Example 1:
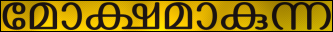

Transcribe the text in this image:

മോക്ഷമാകുന്ന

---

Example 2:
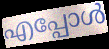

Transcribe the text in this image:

എപ്പോൾ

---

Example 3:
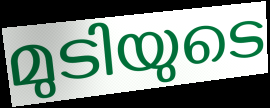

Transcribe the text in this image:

മുടിയുടെ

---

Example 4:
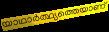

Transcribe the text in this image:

യാഥാർത്ഥ്യത്തെയാണ്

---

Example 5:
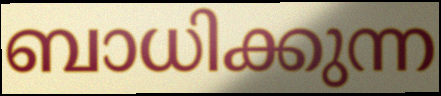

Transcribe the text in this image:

ബാധിക്കുന്ന